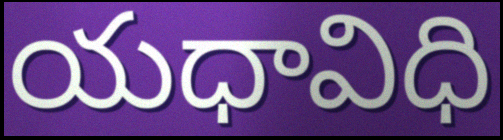
యధావిధి